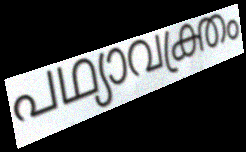
പഥ്യാവക്ത്രം